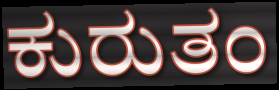
ಕುರುತಂ